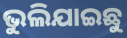
ଭୁଲିଯାଇଛୁ